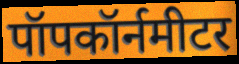
पॉपकॉर्नमीटर